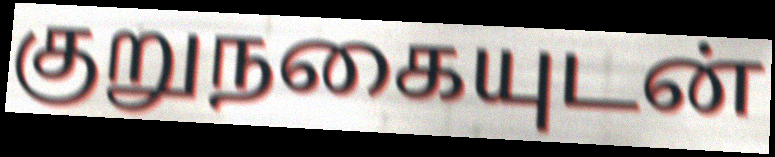
குறுநகையுடன்